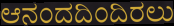
ಆನಂದದಿಂದಿರಲು